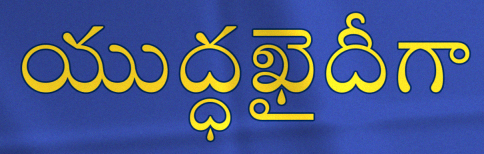
యుద్ధఖైదీగా